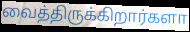
வைத்திருக்கிறார்களா